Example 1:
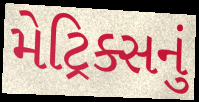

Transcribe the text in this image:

મેટ્રિક્સનું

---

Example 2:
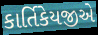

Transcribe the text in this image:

કાર્તિકેયજીએ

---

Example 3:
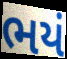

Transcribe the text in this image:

ભયં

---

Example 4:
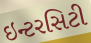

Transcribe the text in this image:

ઇન્ટરસિટી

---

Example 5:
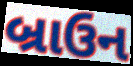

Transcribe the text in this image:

બ્રાઉન